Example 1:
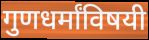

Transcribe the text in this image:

गुणधर्मांविषयी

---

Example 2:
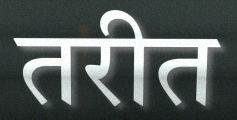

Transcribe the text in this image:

तरीत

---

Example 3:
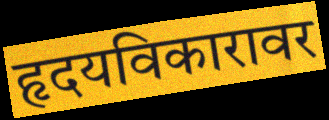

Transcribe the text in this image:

हृदयविकारावर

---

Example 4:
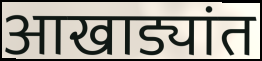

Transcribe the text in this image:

आखाड्यांत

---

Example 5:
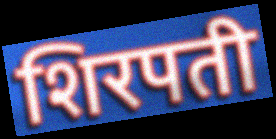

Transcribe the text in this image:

शिरपती